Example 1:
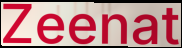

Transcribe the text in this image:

Zeenat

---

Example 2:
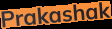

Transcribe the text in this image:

Prakashak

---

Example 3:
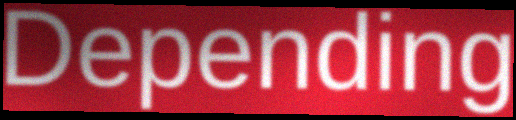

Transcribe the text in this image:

Depending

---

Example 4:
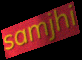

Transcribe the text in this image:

samjhi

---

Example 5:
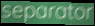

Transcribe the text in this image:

separator